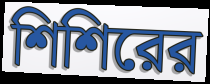
শিশিরের